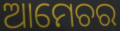
ଆମେଚର